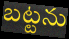
బట్టను